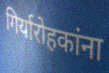
गिर्यारोहकांना